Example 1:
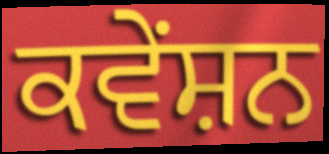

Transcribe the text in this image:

ਕਵੇਂਸ਼ਨ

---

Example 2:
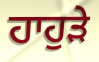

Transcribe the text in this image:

ਹਾਹੁੜੇ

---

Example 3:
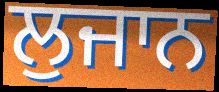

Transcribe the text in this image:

ਲੁਜਾਨ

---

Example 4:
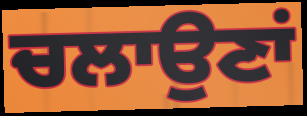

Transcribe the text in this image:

ਚਲਾਉਣਾਂ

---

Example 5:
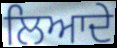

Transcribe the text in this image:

ਲਿਆਦੇ